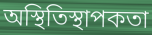
অস্থিতিস্থাপকতা